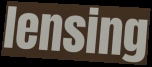
lensing